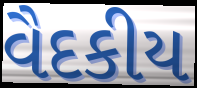
વૈદકીય